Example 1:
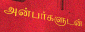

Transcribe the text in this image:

அன்பர்களுடன்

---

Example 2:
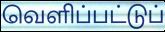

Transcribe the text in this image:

வெளிப்பட்டுப்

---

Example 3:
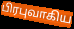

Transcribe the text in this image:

பிரபுவாகிய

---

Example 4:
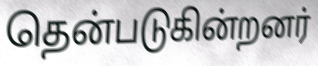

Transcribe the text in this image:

தென்படுகின்றனர்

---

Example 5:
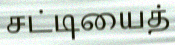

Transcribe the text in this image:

சட்டியைத்